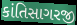
કાંતિસાગરજી